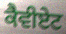
ਕੈਵੀਏਟ